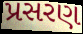
પ્રસરણ